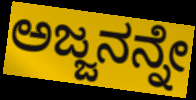
ಅಜ್ಜನನ್ನೇ